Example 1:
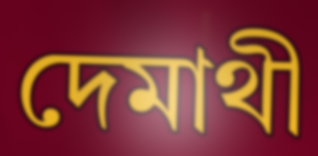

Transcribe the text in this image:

দেমাথী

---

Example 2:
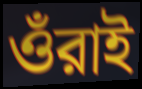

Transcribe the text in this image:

ওঁরাই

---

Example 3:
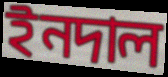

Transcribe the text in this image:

ইনদাল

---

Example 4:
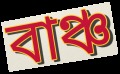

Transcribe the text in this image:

বাঞ্চ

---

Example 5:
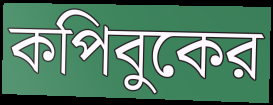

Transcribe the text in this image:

কপিবুকের